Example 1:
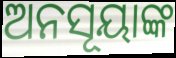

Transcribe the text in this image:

ଅନସୂୟାଙ୍କ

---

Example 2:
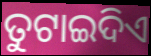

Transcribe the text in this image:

ତୁଟାଇଦିଏ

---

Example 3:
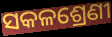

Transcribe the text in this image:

ସକଳଶ୍ରେଣୀ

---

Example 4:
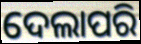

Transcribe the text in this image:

ଦେଲାପରି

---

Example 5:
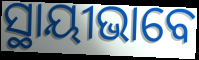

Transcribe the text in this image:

ସ୍ଥାୟୀଭାବେ